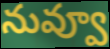
నువ్వూ